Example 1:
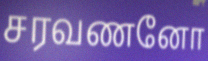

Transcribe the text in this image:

சரவணனோ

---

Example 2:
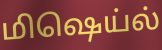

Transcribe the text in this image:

மிஷெய்ல்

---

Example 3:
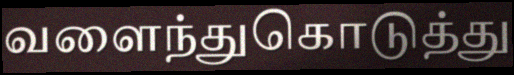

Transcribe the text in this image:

வளைந்துகொடுத்து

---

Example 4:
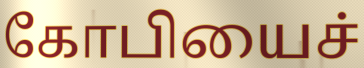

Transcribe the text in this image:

கோபியைச்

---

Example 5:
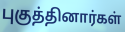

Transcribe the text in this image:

புகுத்தினார்கள்